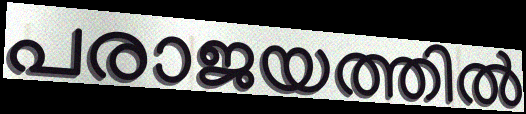
പരാജയത്തിൽ